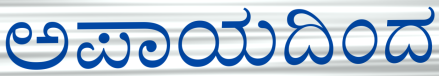
ಅಪಾಯದಿಂದ